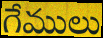
గేములు